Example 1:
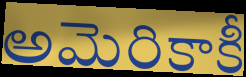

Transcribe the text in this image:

అమెరికాకీ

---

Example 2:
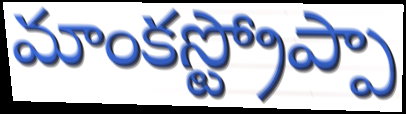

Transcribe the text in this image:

మాంకస్ట్రోప్పా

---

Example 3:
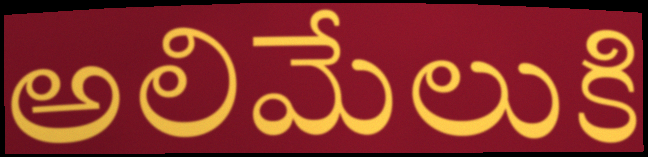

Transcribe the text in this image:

అలిమేలుకి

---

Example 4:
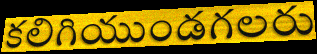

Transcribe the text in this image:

కలిగియుండగలరు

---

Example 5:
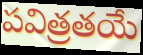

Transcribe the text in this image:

పవిత్రతయే